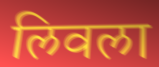
लिवला